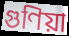
গুণিয়া